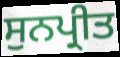
ਸੁਨਪ੍ਰੀਤ